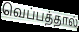
வெப்பத்தால்